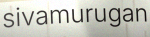
sivamurugan